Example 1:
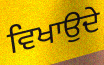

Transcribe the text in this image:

ਵਿਖਾਉਦੇ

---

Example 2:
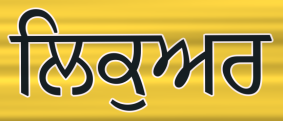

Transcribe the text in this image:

ਲਿਕੁਅਰ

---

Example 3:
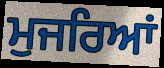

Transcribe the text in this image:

ਮੁਜਰਿਆਂ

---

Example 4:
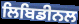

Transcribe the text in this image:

ਲਿਬਿਡੀਨਲ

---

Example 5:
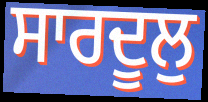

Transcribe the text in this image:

ਸਾਰਦੂਲੁ